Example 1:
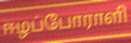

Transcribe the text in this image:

ஈழப்போராளி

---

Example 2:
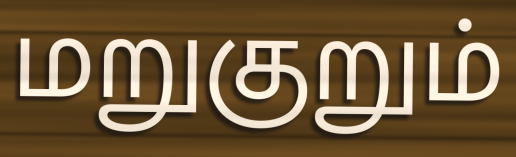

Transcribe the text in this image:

மறுகுறும்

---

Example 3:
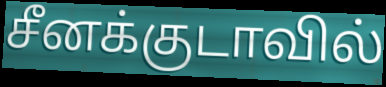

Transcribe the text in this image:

சீனக்குடாவில்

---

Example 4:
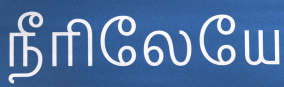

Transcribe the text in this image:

நீரிலேயே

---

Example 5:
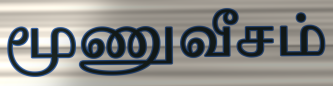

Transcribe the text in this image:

மூணுவீசம்